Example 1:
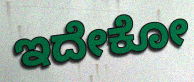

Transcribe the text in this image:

ಇದೇಕೋ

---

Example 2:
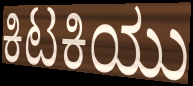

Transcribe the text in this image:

ಕಿಟಕಿಯು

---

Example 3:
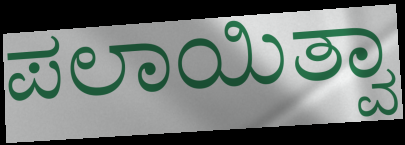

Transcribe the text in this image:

ಪಲಾಯಿತ್ವಾ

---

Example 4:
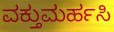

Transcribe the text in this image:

ವಕ್ತುಮರ್ಹಸಿ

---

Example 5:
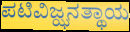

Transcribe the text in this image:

ಪಟಿವಿಜ್ಝನತ್ಥಾಯ